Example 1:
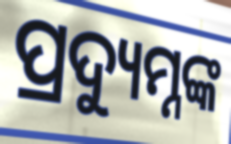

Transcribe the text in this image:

ପ୍ରଦ୍ୟୁମ୍ନଙ୍କ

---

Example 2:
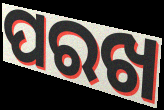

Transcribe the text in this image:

ପରଖ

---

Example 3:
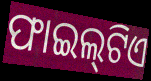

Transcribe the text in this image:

ଫାଇଲ୍‌ଟିଏ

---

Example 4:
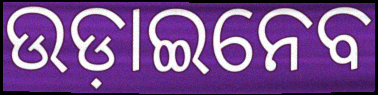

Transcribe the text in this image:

ଉଡ଼ାଇନେବ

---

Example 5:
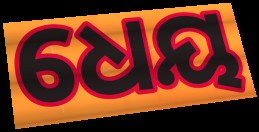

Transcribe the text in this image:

ଧେୟ